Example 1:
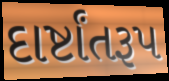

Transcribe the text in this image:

દાર્ષ્ટાંતરૂપ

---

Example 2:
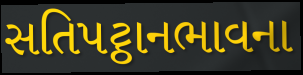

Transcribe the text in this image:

સતિપટ્ઠાનભાવના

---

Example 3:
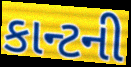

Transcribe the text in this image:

કાન્ટની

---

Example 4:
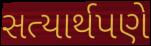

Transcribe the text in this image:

સત્યાર્થપણે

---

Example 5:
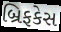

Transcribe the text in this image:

બ્રિફકેસ